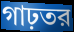
গাঢ়তর